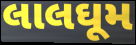
લાલઘૂમ